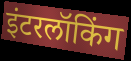
इंटरलॉकिंग